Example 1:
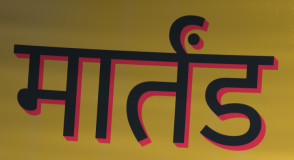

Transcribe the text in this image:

मार्तंड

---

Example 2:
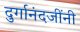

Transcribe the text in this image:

दुर्गानंदजींनी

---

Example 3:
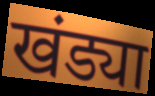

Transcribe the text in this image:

खंड्या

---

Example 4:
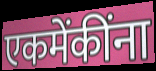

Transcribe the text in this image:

एकमेंकींना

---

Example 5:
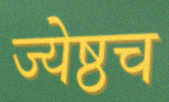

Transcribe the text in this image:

ज्येष्ठच